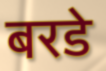
बरडे